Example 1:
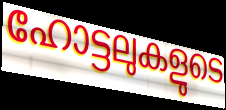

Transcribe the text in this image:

ഹോട്ടലുകളുടെ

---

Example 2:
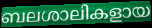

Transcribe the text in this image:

ബലശാലികളായ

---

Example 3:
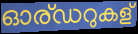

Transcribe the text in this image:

ഓര്ഡറുകള്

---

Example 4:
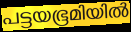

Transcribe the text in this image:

പട്ടയഭൂമിയിൽ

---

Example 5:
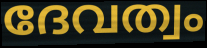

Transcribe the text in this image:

ദേവത്വം